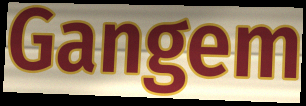
Gangem